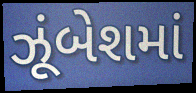
ઝૂંબેશમાં